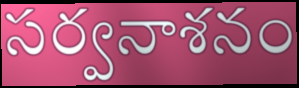
సర్వనాశనం